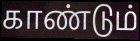
காண்டும்